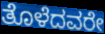
ತೊಳೆದವರೇ